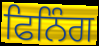
ਫਿਨਿੰਗ